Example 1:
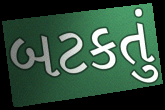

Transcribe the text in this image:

બટકતું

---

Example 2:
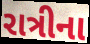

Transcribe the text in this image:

રાત્રીના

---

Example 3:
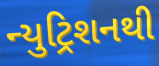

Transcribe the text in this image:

ન્યુટ્રિશનથી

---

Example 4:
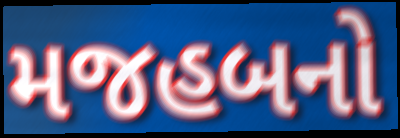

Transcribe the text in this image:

મજહબનો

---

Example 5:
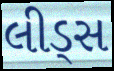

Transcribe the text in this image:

લીડ્સ